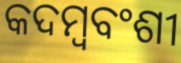
କଦମ୍ବବଂଶୀ